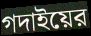
গদাইয়ের